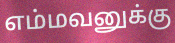
எம்மவனுக்கு